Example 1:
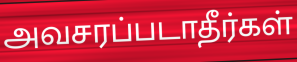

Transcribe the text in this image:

அவசரப்படாதீர்கள்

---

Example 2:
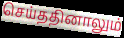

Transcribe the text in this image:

செய்ததினாலும்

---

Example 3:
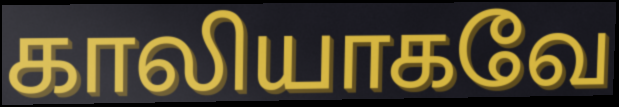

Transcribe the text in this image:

காலியாகவே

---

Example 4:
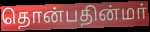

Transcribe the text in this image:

தொன்பதின்மர்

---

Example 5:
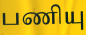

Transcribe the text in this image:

பணியு